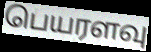
பெயரளவு